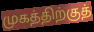
முகத்திற்குத்